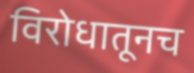
विरोधातूनच